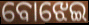
ବୋଝେଇ